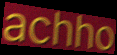
achho